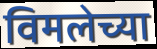
विमलेच्या